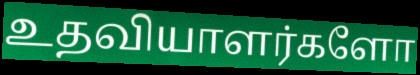
உதவியாளர்களோ